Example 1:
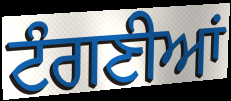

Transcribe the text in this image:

ਟੰਗਣੀਆਂ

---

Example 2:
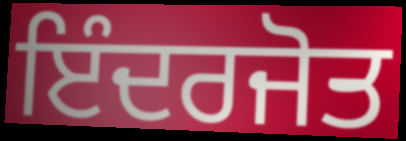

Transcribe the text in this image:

ਇੰਦਰਜੋਤ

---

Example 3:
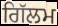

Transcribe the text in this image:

ਗਿੱਲਮ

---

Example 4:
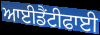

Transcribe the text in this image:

ਆਈਡੈਂਟੀਫਾਈ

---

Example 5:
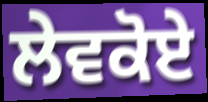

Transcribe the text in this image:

ਲੇਵਕੋਏ